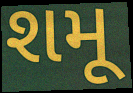
શમૂ